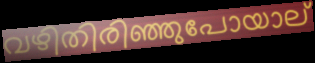
വഴിതിരിഞ്ഞുപോയാല്